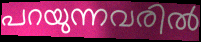
പറയുന്നവരിൽ